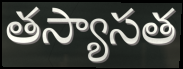
తస్యాసత